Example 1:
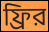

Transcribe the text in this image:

ফ্রির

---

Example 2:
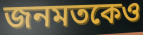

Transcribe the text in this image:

জনমতকেও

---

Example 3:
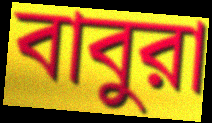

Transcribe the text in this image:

বাবুরা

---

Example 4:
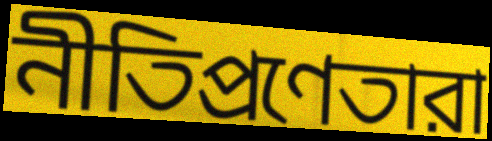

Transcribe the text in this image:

নীতিপ্রণেতারা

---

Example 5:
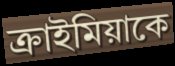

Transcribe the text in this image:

ক্রাইমিয়াকে